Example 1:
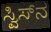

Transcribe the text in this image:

ಸ್ವಿಸ್‌ನ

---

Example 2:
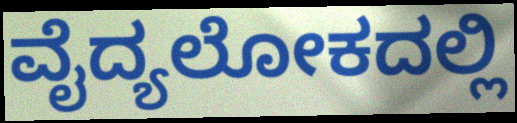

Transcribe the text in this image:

ವೈದ್ಯಲೋಕದಲ್ಲಿ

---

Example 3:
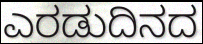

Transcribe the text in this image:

ಎರಡುದಿನದ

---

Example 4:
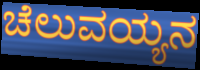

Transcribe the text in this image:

ಚೆಲುವಯ್ಯನ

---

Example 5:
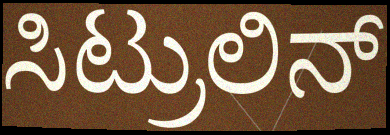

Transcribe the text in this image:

ಸಿಟ್ರುಲಿನ್